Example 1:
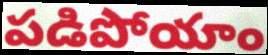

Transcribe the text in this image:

పడిపోయాం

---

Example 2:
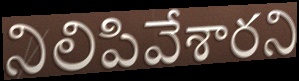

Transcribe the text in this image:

నిలిపివేశారని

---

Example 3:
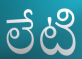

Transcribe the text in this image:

లేటి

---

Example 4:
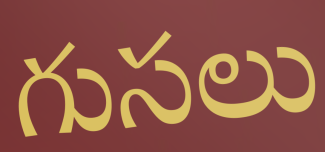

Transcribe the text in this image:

గుసలు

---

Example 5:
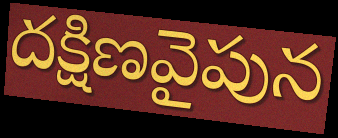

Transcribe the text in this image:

దక్షిణవైపున